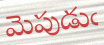
మెపుడుఁ